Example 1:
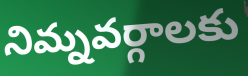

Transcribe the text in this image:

నిమ్నవర్గాలకు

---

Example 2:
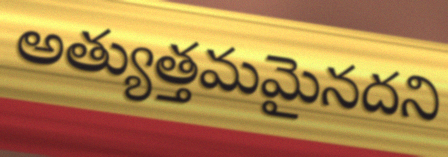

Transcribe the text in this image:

అత్యుత్తమమైనదని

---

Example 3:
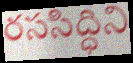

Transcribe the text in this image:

రససిద్ధిని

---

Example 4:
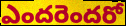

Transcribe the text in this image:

ఎందరెందరో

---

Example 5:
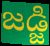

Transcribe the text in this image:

జడ్జి